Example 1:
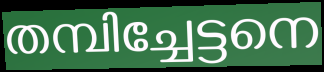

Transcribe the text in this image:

തമ്പിച്ചേട്ടനെ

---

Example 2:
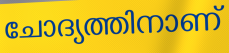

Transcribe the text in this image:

ചോദ്യത്തിനാണ്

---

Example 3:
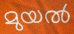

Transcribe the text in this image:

മുയൽ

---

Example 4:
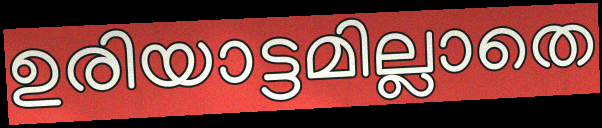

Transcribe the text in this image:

ഉരിയാട്ടമില്ലാതെ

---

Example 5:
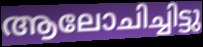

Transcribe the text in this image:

ആലോചിച്ചിട്ടു